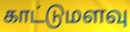
காட்டுமளவு